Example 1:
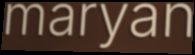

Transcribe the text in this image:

maryan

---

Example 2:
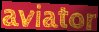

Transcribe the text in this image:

aviator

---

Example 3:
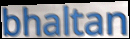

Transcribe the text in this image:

bhaltan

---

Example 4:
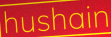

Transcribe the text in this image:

hushain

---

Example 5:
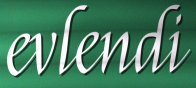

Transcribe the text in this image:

evlendi